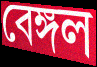
বেঙ্গল